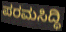
ಪರಮಸಿದ್ಧಿ